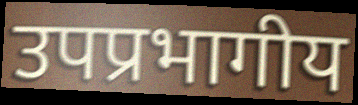
उपप्रभागीय